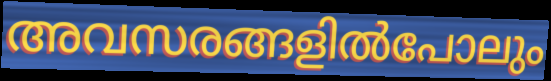
അവസരങ്ങളിൽപോലും